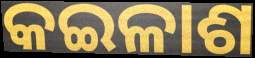
କଇଳାଶ